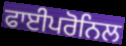
ਫਾਈਪਰੋਨਿਲ